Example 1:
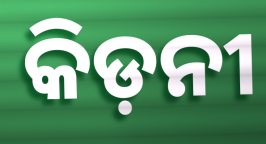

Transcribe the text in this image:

କିଡ଼ନୀ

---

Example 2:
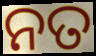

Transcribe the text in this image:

ନତ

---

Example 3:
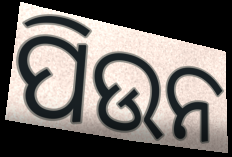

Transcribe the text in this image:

ପିଉନ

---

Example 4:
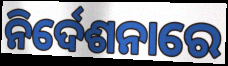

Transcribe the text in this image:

ନିର୍ଦେଶନାରେ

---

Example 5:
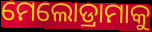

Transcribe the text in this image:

ମେଲୋଡ୍ରାମାକୁ